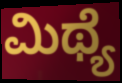
ಮಿಥ್ಯೆ